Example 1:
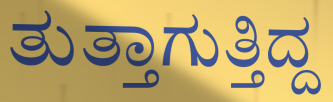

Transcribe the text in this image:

ತುತ್ತಾಗುತ್ತಿದ್ದ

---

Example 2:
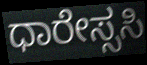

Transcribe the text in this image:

ಧಾರೇಸ್ಸಸಿ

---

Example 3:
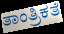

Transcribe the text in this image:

ತಾಂತ್ರಿಕತೆ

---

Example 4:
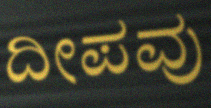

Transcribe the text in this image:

ದೀಪವು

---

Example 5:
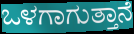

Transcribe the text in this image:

ಒಳಗಾಗುತ್ತಾನೆ